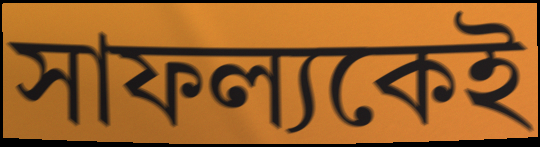
সাফল্যকেই